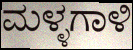
ಮಳ್ಳಗಾಳಿ